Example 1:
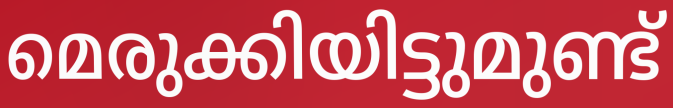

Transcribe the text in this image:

മെരുക്കിയിട്ടുമുണ്ട്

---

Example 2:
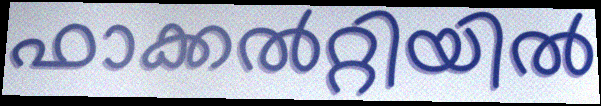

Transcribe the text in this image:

ഫാക്കൽറ്റിയിൽ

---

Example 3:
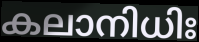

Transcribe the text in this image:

കലാനിധിഃ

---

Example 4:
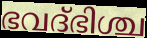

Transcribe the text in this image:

ഭവദ്ഭിശ്ച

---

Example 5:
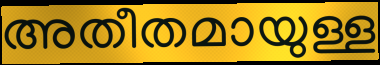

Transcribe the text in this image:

അതീതമായുള്ള